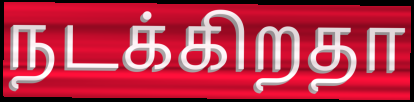
நடக்கிறதா